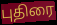
புதிரை